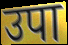
उपा